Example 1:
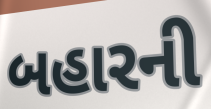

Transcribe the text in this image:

બહારની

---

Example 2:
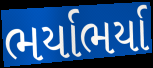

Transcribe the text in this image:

ભર્યાભર્યા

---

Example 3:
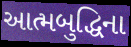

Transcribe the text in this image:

આત્મબુદ્ધિના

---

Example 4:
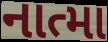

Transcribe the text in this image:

નાત્મા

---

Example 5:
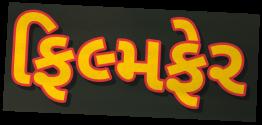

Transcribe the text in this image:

ફિલ્મફેર